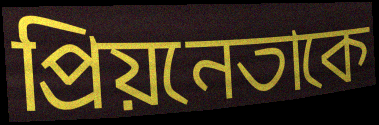
প্রিয়নেতাকে